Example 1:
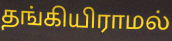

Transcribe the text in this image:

தங்கியிராமல்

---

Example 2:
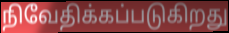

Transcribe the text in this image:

நிவேதிக்கப்படுகிறது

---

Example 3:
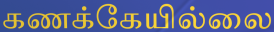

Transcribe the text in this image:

கணக்கேயில்லை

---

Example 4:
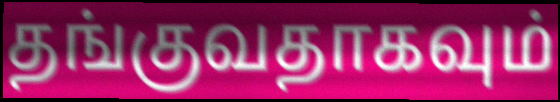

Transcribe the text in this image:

தங்குவதாகவும்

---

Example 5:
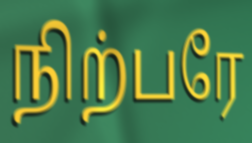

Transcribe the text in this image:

நிற்பரே